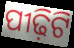
ପୀଢ଼ିଟି